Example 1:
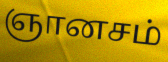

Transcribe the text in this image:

ஞானசம்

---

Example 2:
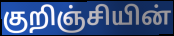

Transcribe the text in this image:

குறிஞ்சியின்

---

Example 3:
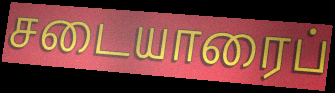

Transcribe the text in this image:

சடையாரைப்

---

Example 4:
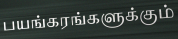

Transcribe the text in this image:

பயங்கரங்களுக்கும்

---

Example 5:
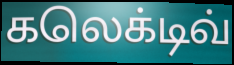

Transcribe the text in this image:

கலெக்டிவ்